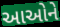
આઓને